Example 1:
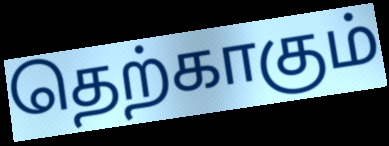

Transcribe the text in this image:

தெற்காகும்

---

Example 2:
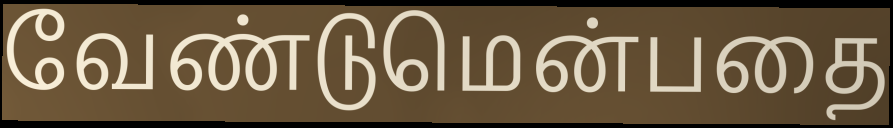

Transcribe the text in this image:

வேண்டுமென்பதை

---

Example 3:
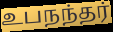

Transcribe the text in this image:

உபநந்தர்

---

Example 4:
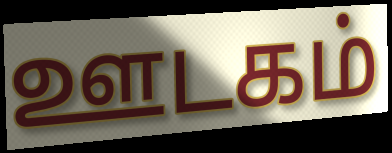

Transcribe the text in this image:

ஊடகம்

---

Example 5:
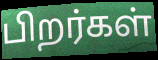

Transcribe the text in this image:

பிறர்கள்